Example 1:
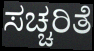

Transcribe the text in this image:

ಸಚ್ಚರಿತೆ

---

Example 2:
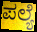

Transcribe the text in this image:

ಪಲ್ಯೆ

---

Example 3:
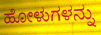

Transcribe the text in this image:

ಹೋಳುಗಳನ್ನು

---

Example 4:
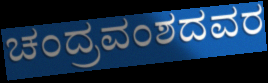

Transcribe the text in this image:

ಚಂದ್ರವಂಶದವರ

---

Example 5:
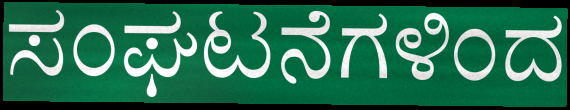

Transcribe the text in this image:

ಸಂಘಟನೆಗಳಿಂದ